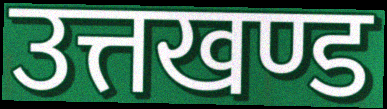
उत्तखण्ड